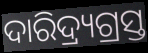
ଦାରିଦ୍ର୍ୟଗ୍ରସ୍ତ